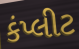
કંપ્લીટ